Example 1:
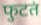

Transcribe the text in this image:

फुटतं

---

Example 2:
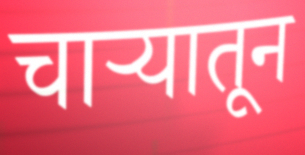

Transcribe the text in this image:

चाऱ्यातून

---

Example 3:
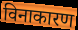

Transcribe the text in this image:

विनाकारण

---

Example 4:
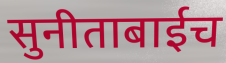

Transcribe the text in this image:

सुनीताबाईच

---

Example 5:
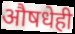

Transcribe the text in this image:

औषधेही